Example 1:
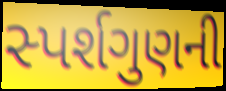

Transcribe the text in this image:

સ્પર્શગુણની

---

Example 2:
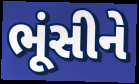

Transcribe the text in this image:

ભૂંસીને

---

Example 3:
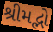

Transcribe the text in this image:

શ્રીમદ્ભો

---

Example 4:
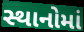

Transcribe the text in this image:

સ્થાનોમાં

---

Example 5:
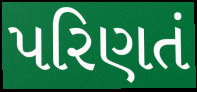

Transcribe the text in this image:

પરિણતં